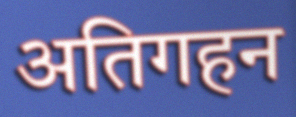
अतिगहन